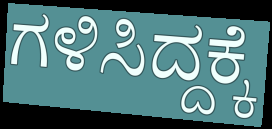
ಗಳಿಸಿದ್ದಕ್ಕೆ